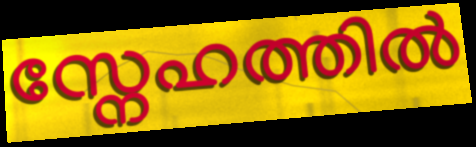
സ്നേഹത്തിൽ